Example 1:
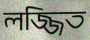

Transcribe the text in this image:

লজ্জিত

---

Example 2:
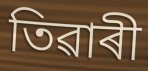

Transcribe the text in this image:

তিৱাৰী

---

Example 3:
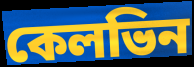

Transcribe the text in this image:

কেলভিন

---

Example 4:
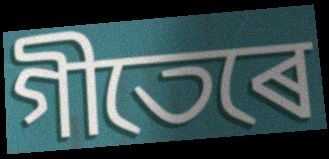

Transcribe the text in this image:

গীতেৰে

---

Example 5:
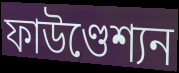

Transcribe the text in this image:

ফাউণ্ডেশ্যন